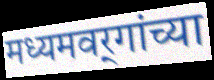
मध्यमवर्गांच्या